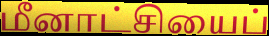
மீனாட்சியைப்